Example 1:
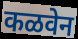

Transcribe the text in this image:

कळवेन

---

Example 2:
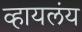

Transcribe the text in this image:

व्हायलंय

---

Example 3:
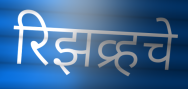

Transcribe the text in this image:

रिझव्र्हचे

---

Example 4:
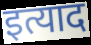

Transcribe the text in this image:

इत्याद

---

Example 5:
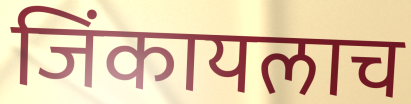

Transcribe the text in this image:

जिंकायलाच